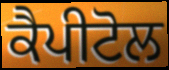
ਕੈਪੀਟੋਲ